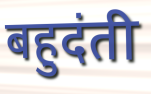
बहुदंती